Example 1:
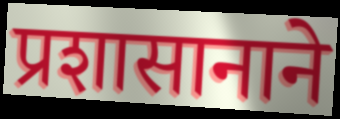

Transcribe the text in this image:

प्रशासानाने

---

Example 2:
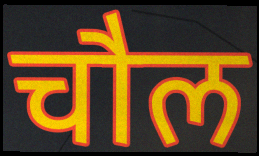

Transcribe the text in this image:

चौल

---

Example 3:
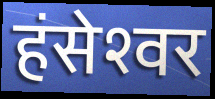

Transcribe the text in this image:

हंसेश्वर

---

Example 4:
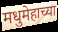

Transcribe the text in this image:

मधुमेहाच्या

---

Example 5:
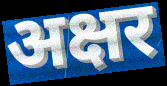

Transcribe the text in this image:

अक्षर